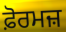
ਫ਼ੋਰਮਜ਼